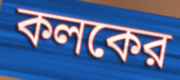
কলকের